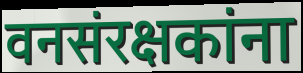
वनसंरक्षकांना